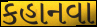
કહાનવા